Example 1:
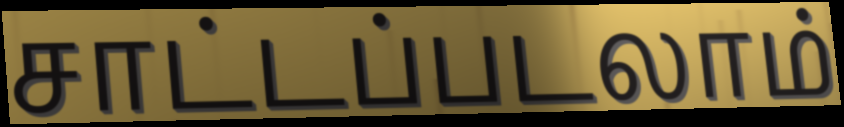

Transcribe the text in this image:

சாட்டப்படலாம்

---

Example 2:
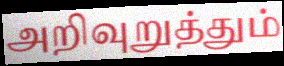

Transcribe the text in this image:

அறிவுறுத்தும்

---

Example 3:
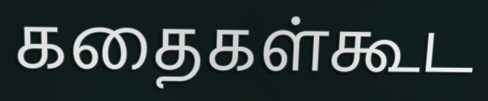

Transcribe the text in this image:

கதைகள்கூட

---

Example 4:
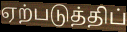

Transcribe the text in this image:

ஏற்படுத்திப்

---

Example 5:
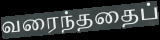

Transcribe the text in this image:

வரைந்ததைப்